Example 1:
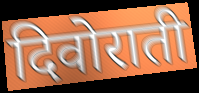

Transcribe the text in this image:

दिवोराती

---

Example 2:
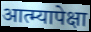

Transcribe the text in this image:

आत्म्यापेक्षा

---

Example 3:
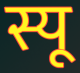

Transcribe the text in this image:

स्यू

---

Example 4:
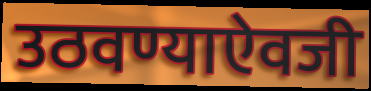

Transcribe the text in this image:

उठवण्याऐवजी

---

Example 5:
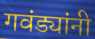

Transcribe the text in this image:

गवंड्यांनी